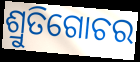
ଶ୍ରୁତିଗୋଚର